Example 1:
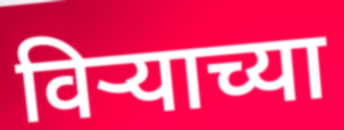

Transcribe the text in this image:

विर्‍याच्या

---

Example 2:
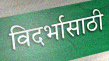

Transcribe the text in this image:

विदर्भासाठी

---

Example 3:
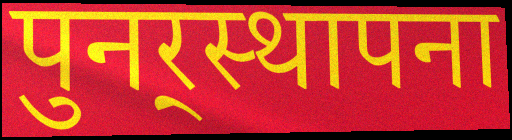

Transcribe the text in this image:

पुनर्स्थापना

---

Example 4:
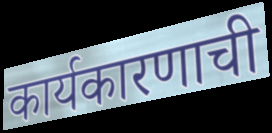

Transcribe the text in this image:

कार्यकारणाची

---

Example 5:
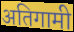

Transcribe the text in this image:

अतिगामी